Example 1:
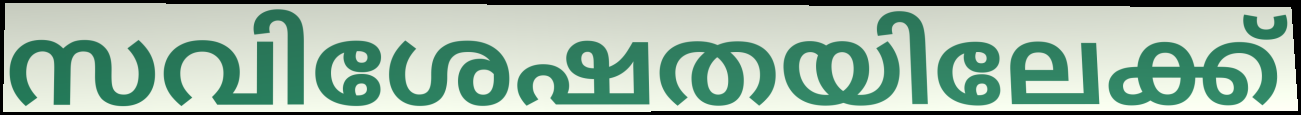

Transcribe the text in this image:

സവിശേഷതയിലേക്ക്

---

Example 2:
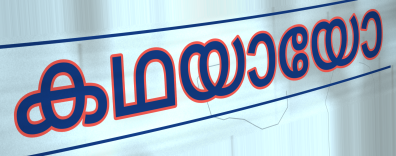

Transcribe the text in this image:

കഥയായോ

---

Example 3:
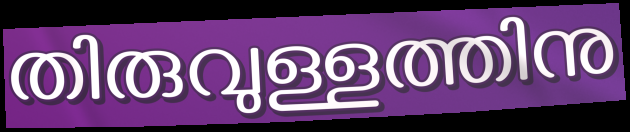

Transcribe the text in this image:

തിരുവുള്ളത്തിനു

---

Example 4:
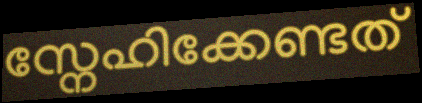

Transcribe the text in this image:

സ്നേഹിക്കേണ്ടത്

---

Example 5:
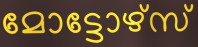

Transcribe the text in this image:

മോട്ടോഴ്സ്